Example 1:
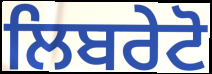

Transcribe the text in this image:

ਲਿਬਰੇਟੋ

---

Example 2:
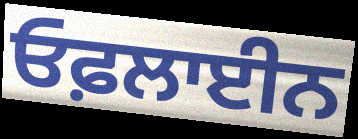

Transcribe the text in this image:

ਓਫ਼ਲਾਈਨ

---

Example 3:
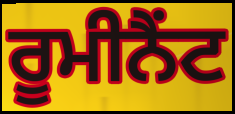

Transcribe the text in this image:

ਰੂਮੀਨੈਂਟ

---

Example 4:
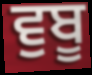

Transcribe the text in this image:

ਵੁਬੂ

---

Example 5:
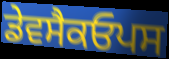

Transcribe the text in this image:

ਡੇਵਸੈਕਓਪਸ